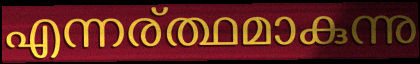
എന്നര്ത്ഥമാകുന്നു